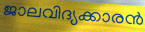
ജാലവിദ്യക്കാരൻ